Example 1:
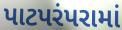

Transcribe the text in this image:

પાટપરંપરામાં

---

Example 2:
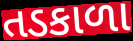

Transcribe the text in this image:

તડકાળા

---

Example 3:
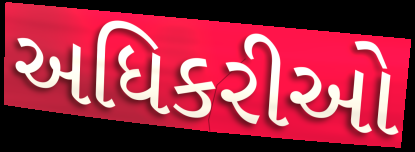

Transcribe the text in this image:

અધિકરીઓ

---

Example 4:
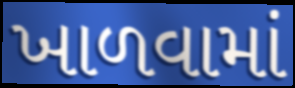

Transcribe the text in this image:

ખાળવામાં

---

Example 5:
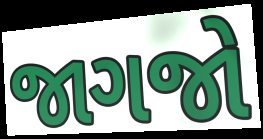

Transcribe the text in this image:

જાગજો